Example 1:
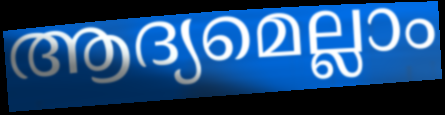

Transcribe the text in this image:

ആദ്യമെല്ലാം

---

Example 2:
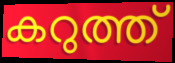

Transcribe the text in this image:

കറുത്ത്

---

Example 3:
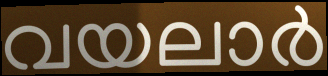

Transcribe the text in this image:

വയലാർ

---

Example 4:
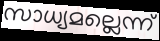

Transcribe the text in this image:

സാധ്യമല്ലെന്ന്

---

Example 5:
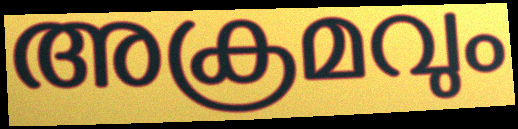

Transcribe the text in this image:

അക്രമവും